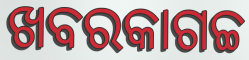
ଖବରକାଗଚ୍ଚ